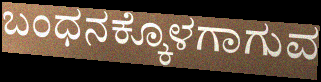
ಬಂಧನಕ್ಕೊಳಗಾಗುವ